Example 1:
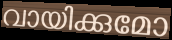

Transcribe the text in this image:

വായിക്കുമോ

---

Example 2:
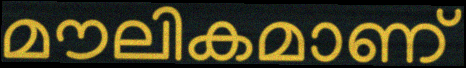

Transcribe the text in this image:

മൗലികമാണ്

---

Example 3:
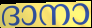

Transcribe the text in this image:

ദാനാ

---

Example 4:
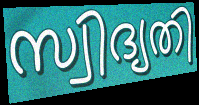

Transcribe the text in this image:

സ്വിദ്യതി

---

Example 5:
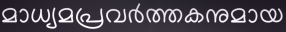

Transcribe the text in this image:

മാധ്യമപ്രവർത്തകനുമായ